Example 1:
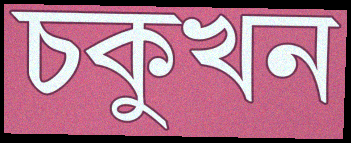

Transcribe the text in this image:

চকুখন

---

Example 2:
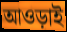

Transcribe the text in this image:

আওড়াই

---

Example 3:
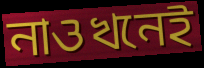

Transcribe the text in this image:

নাওখনেই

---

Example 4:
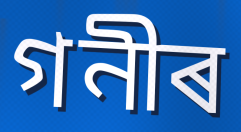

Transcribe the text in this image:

গনীৰ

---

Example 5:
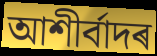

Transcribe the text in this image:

আশীৰ্বাদৰ